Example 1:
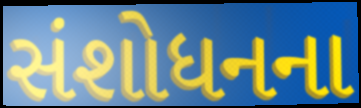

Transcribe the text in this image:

સંશોધનના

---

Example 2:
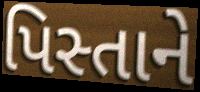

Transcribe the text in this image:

પિસ્તાને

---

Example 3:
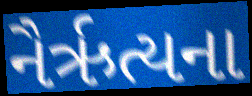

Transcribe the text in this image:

નૈર્ઋત્યના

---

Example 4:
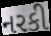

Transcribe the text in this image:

નરકી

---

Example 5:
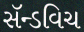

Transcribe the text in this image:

સૅન્ડવિચ